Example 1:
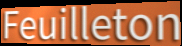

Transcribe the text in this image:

Feuilleton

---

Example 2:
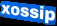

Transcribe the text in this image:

xossip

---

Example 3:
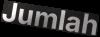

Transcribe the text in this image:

Jumlah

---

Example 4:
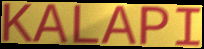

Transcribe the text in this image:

KALAPI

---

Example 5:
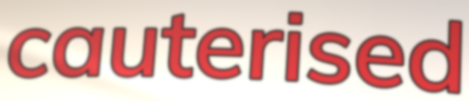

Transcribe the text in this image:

cauterised